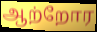
ஆற்றோர